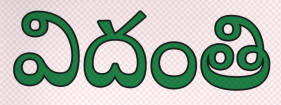
విదంతి